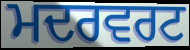
ਮਦਰਵਰਟ